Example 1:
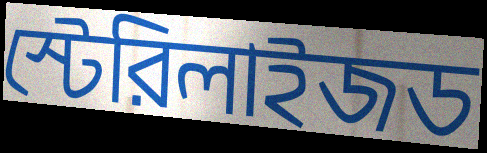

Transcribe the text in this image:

স্টেরিলাইজড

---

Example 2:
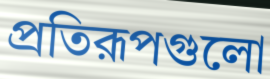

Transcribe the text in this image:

প্রতিরূপগুলো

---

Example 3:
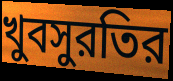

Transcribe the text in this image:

খুবসুরতির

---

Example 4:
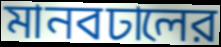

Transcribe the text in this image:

মানবঢালের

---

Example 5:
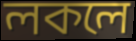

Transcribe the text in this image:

লকলে